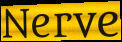
Nerve